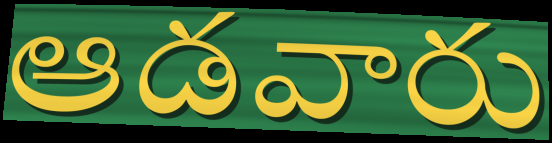
ఆడవారు